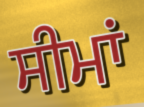
ਸੀਮਾਂ